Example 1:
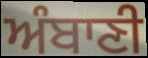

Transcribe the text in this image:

ਅੰਬਾਣੀ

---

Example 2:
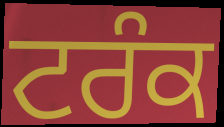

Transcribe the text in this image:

ਟਰੰਕ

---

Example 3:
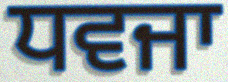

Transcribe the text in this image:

ਧਵਜਾ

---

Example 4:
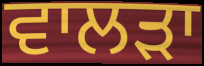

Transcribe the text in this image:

ਵਾਲੜਾ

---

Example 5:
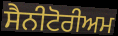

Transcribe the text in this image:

ਸੈਨੀਟੋਰੀਅਮ